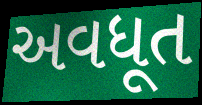
અવધૂત